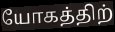
யோகத்திற்